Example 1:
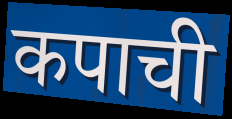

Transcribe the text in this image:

कपाची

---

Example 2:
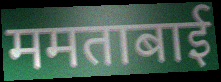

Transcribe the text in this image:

ममताबाई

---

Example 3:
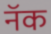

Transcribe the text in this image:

नॅक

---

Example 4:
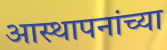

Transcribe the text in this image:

आस्थापनांच्या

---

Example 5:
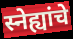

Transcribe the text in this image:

स्नेह्यांचे